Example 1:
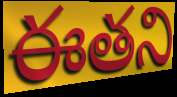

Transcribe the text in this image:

ఈతని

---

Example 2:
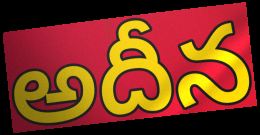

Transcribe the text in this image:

అదీన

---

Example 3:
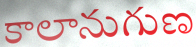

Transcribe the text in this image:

కాలానుగుణ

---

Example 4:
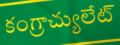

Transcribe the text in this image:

కంగ్రాచ్యులేట్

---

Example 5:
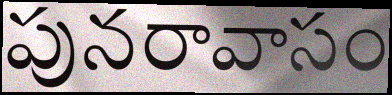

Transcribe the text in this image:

పునరావాసం